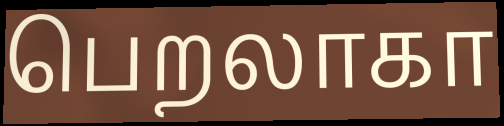
பெறலாகா